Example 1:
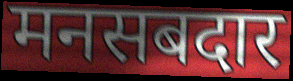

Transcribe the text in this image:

मनसबदार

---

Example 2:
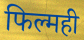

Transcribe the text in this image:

फिल्मही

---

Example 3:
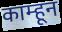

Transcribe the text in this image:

काम्हून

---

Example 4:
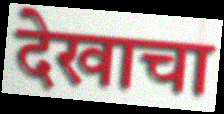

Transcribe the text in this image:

देखाचा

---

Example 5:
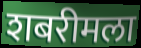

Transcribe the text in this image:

शबरीमला